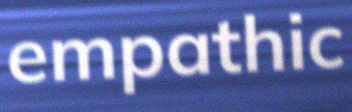
empathic